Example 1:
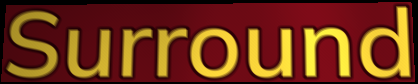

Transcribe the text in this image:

Surround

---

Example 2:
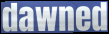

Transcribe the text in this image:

dawned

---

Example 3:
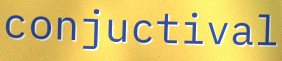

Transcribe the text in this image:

conjuctival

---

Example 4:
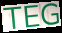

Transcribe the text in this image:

TEG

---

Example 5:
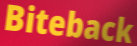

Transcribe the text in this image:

Biteback